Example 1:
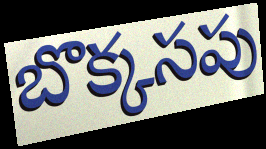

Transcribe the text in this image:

బొక్కసపు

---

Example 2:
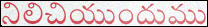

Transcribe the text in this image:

నిలిచియుందుము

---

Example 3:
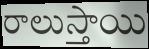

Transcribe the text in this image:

రాలుస్తాయి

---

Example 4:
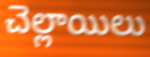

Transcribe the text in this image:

చెల్లాయిలు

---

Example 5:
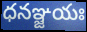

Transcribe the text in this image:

ధనఞ్జయః